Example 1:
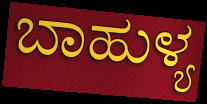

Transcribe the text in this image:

ಬಾಹುಳ್ಯ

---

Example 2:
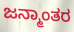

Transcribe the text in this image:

ಜನ್ಮಾಂತರ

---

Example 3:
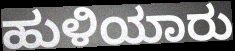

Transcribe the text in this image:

ಹುಳಿಯಾರು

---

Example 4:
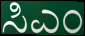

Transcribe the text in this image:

ಸಿಎಂ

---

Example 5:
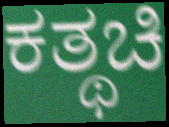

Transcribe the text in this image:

ಕತ್ಥಚಿ